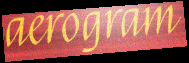
aerogram